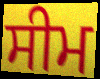
ਸੀਮ